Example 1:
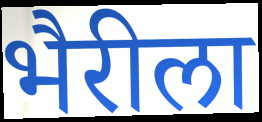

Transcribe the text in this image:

भैरीला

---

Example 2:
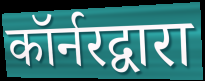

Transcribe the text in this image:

कॉर्नरद्वारा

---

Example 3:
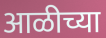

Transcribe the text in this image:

आळीच्या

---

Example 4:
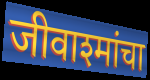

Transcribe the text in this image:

जीवाश्मांचा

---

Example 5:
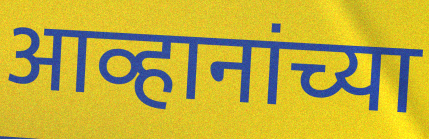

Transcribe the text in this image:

आव्हानांच्या